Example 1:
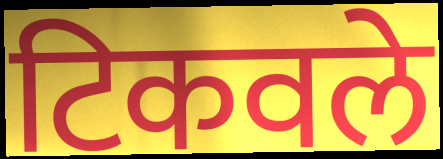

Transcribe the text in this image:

टिकवले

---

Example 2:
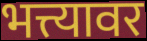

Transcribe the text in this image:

भत्त्यावर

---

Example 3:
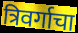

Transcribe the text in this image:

त्रिवर्गाचा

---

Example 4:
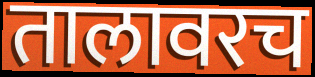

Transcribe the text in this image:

तालावरच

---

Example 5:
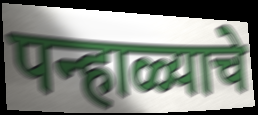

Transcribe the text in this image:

पन्हाळ्याचे